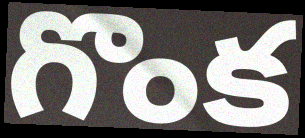
గొంక